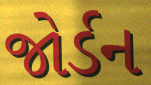
જોર્ડન